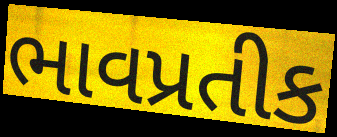
ભાવપ્રતીક